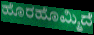
ಹೊರಹೊಮ್ಮಿದೆ